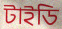
টাইডি